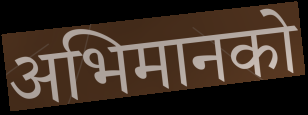
अभिमानको